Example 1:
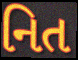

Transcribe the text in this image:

નિત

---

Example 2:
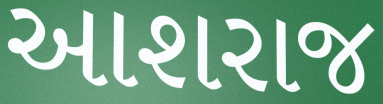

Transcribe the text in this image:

આશરાજ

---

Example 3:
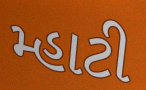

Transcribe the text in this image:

મ્હાટી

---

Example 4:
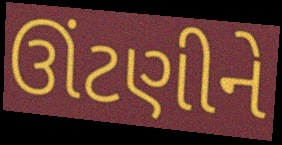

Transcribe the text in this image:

ઊંટણીને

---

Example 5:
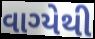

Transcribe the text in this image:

વાગ્યેથી